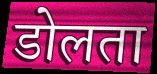
डोलता